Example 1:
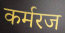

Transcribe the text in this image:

कर्मरज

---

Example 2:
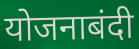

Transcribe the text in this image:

योजनाबंदी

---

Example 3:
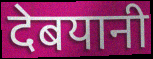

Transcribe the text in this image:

देबयानी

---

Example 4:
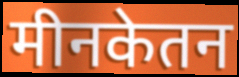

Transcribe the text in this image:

मीनकेतन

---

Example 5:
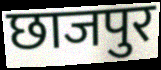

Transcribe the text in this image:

छाजपुर